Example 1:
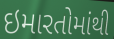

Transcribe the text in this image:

ઇમારતોમાંથી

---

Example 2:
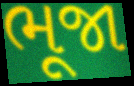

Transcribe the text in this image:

ભૂજા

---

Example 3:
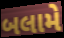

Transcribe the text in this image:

બલામે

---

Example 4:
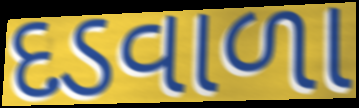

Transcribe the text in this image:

દડવાળા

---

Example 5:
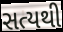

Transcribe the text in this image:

સત્યથી